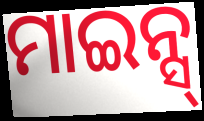
ମାଇନ୍ସ୍